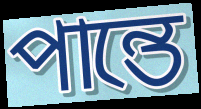
পান্তে